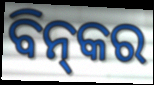
ବିନ୍‌କର